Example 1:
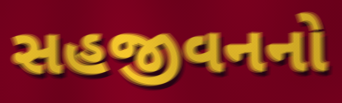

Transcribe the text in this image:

સહજીવનનો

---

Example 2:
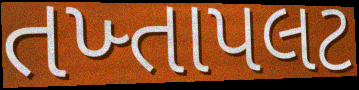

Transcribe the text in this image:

તખ્તાપલટ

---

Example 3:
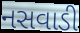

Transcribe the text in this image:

નસવાડી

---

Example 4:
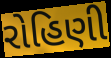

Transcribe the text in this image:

રોહિણી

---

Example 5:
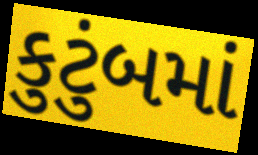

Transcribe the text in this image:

કુટુંબમાં